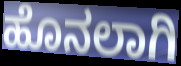
ಹೊನಲಾಗಿ